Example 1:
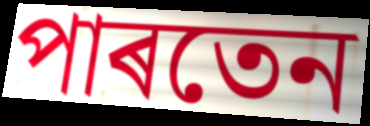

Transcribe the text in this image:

পাৰতেন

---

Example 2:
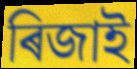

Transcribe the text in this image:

ৰিজাই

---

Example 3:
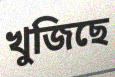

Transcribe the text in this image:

খুজিছে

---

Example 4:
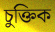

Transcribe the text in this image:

চুক্তিক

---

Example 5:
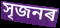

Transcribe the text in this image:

সৃজনৰ